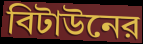
বিটাউনের